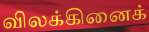
விலக்கினைக்